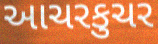
આચરકુચર